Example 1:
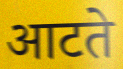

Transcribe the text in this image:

आटते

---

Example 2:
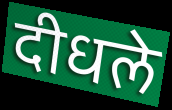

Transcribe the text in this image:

दीधले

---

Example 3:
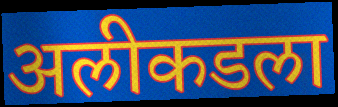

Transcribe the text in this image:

अलीकडला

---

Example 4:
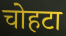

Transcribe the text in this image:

चोहटा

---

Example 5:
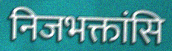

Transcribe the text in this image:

निजभक्तांसि